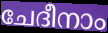
ചേദീനാം